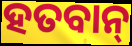
ହତବାନ୍